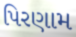
પિરણામ